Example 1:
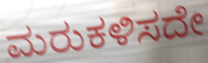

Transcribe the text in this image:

ಮರುಕಳಿಸದೇ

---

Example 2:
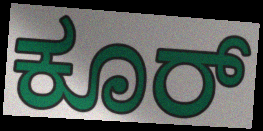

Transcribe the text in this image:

ಕೂರ್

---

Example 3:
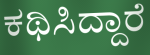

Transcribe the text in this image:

ಕಥಿಸಿದ್ದಾರೆ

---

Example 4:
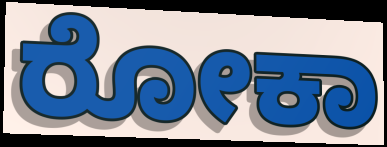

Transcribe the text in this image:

ರೋಕಾ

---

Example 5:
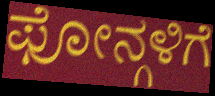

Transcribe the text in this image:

ಫೋನ್ಗಳಿಗೆ